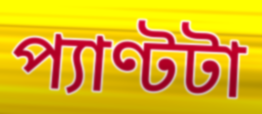
প্যাণ্টটা